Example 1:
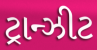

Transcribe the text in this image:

ટ્રાન્ઝીટ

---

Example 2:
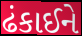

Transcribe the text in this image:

ઢંકાઈને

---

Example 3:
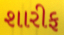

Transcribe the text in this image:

શારીફ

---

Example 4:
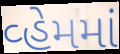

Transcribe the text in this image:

વ્હેમમાં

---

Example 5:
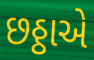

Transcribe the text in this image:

છઠ્ઠાએ